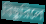
বিছুরিলে